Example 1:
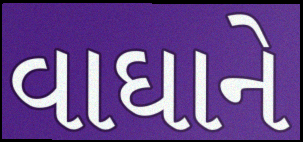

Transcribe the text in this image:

વાઘાને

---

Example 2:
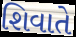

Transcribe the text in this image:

શિવાતે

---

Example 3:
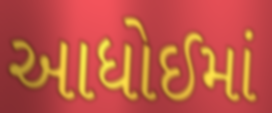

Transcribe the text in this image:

આધોઈમાં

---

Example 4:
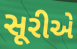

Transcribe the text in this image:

સૂરીએ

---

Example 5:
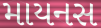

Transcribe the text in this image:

માયનસ